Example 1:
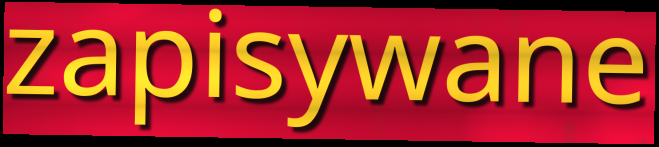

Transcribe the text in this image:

zapisywane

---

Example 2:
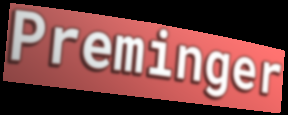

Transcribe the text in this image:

Preminger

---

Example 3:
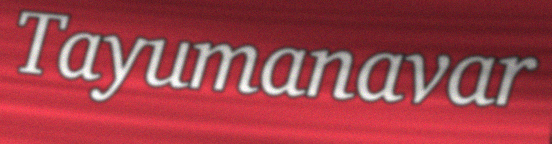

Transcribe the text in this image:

Tayumanavar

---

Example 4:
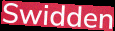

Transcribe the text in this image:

Swidden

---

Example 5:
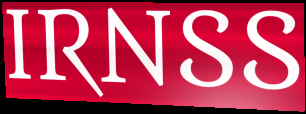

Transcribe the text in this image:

IRNSS